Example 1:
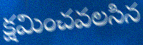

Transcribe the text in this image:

క్షమించవలసిన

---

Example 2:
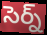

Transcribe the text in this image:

సెర్న్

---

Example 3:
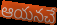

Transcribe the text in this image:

ఆయనచే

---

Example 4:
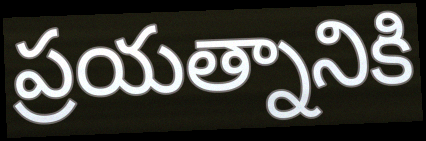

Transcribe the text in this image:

ప్రయత్నానికి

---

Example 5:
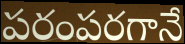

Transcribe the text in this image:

పరంపరగానే